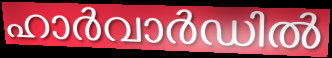
ഹാർവാർഡിൽ